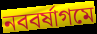
নববর্ষাগমে